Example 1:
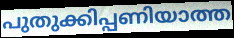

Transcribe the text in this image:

പുതുക്കിപ്പണിയാത്ത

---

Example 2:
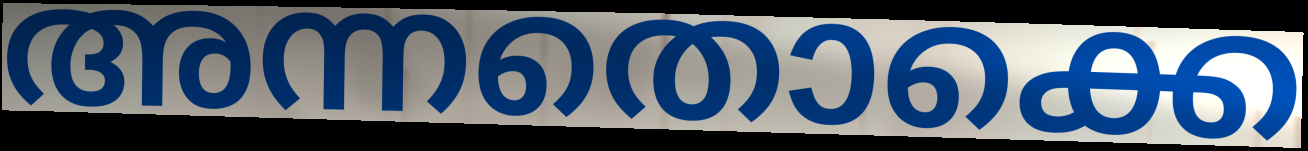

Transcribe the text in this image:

അന്നതൊക്കെ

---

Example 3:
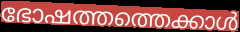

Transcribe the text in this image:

ഭോഷത്തത്തെക്കാൾ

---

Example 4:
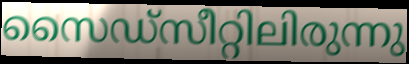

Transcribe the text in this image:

സൈഡ്സീറ്റിലിരുന്നു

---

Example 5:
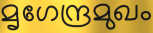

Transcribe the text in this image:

മൃഗേന്ദ്രമുഖം